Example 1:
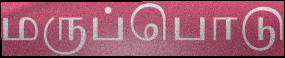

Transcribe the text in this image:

மருப்பொடு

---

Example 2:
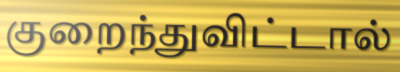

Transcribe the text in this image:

குறைந்துவிட்டால்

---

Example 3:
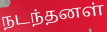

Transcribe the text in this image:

நடந்தனள்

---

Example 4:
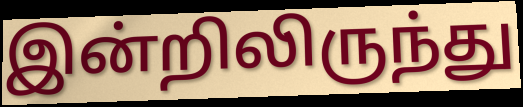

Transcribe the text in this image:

இன்றிலிருந்து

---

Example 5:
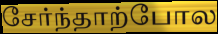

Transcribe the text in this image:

சேர்ந்தாற்போல